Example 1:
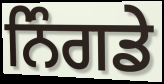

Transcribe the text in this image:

ਨਿੰਗਡੇ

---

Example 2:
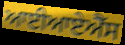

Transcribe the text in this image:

ਆਈਆਏਐੱਸ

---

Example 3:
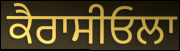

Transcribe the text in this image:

ਕੈਰਾਸੀਓਲਾ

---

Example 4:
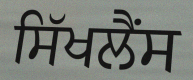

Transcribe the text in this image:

ਸਿੱਖਲੈਂਸ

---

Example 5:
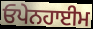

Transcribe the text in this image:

ਓਪੇਨਹਾਈਮ